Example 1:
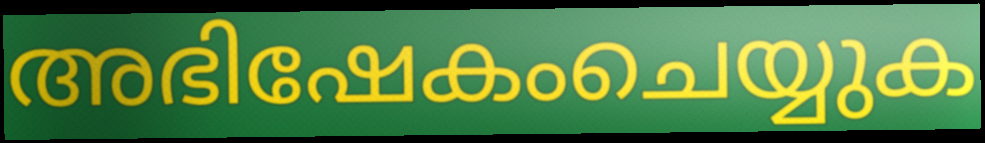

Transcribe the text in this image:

അഭിഷേകംചെയ്യുക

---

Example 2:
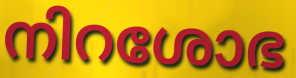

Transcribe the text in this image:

നിറശോഭ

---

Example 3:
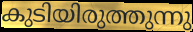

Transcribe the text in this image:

കുടിയിരുത്തുന്നു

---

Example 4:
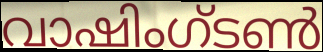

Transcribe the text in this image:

വാഷിംഗ്ടൺ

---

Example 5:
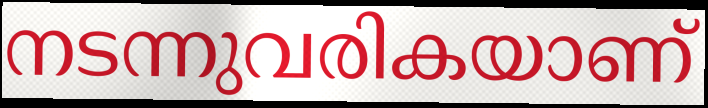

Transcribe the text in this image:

നടന്നുവരികയാണ്